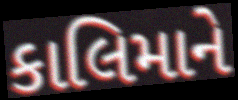
કાલિમાને